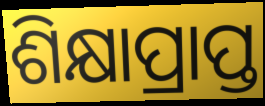
ଶିକ୍ଷାପ୍ରାପ୍ତ